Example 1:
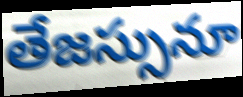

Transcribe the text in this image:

తేజస్సునూ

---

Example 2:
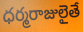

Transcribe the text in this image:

ధర్మరాజులైతే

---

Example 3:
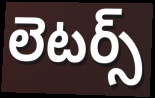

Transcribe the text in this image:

లెటర్స్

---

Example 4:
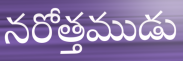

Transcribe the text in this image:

నరోత్తముడు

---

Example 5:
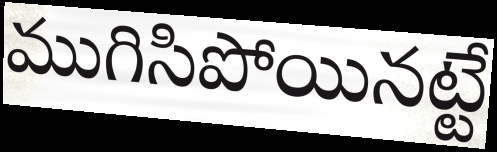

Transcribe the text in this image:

ముగిసిపోయినట్టే